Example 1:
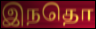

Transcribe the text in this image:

இநதொ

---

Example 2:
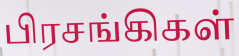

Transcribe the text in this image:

பிரசங்கிகள்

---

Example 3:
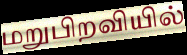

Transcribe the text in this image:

மறுபிறவியில்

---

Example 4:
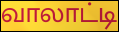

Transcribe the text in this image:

வாலாட்டி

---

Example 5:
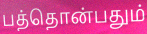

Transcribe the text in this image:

பத்தொன்பதும்